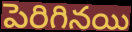
పెరిగినయి